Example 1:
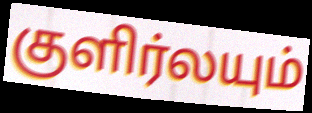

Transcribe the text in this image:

குளிர்லயும்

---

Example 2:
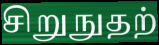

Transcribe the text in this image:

சிறுநுதற்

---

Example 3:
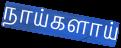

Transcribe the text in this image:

நாய்களாய்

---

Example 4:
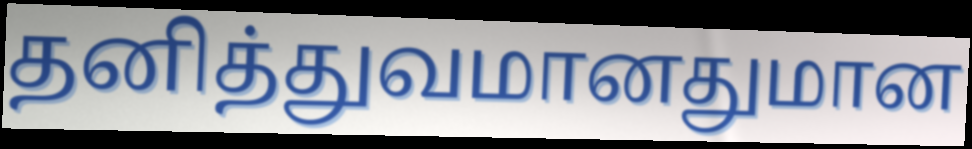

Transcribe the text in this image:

தனித்துவமானதுமான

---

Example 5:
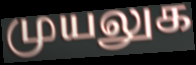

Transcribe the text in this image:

முயலுக